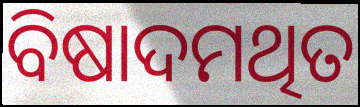
ବିଷାଦମଥିତ